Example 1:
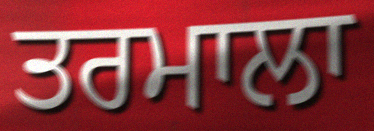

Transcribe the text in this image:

ਤਰਮਾਲਾ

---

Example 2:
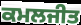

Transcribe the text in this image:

ਕਮਲਜੀਤ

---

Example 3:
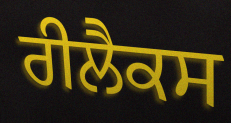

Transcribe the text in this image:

ਰੀਲੈਕਸ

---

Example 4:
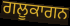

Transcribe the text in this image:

ਗਲੂਕਾਗਨ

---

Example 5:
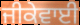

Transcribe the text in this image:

ਜੀਕੇਵਾਈ